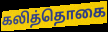
கலித்தொகை